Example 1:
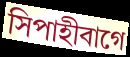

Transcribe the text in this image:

সিপাহীবাগে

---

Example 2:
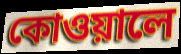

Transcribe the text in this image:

কোওয়ালে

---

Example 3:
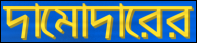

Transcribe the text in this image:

দামোদারের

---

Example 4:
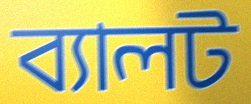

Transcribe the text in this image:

ব্যালট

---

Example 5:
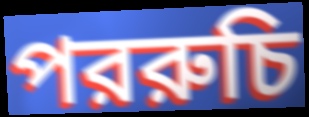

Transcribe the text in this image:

পররুচি